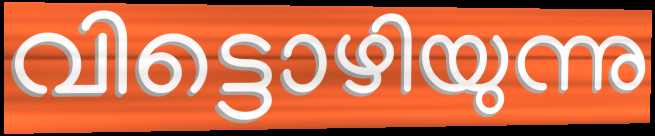
വിട്ടൊഴിയുന്നു